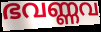
ഭവണ്ണവ